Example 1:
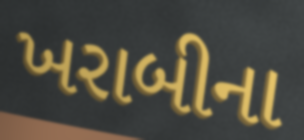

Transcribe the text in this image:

ખરાબીના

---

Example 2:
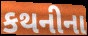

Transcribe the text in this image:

કથનીના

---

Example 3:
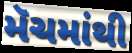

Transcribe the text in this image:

મૅચમાંથી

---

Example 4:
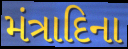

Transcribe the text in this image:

મંત્રાદિના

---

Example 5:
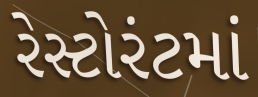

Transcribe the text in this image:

રેસ્ટોરંટમાં